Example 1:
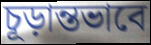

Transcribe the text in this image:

চূড়ান্তভাবে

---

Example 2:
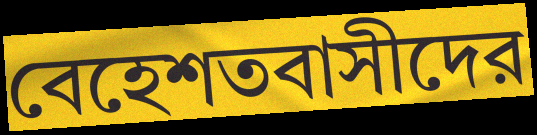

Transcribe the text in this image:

বেহেশতবাসীদের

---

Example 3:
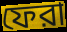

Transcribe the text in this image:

ফেরা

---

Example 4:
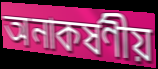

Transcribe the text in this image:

অনাকর্ষণীয়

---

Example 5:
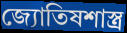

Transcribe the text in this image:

জ্যোতিষশাস্ত্র